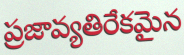
ప్రజావ్యతిరేకమైన